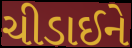
ચીડાઈને